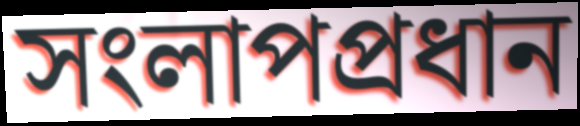
সংলাপপ্রধান